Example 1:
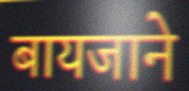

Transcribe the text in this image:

बायजाने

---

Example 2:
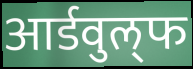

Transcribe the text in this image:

आर्डवुल्फ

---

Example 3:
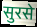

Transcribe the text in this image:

सुरसे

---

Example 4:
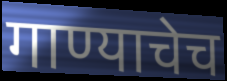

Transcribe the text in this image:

गाण्याचेच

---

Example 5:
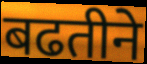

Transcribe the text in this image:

बढतीने